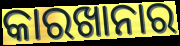
କାରଖାନାର